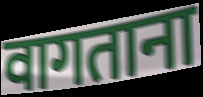
वागताना